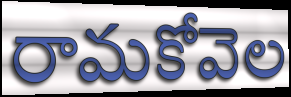
రామకోవెల